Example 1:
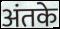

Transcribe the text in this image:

अंतके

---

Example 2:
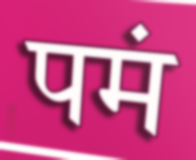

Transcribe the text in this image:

पमं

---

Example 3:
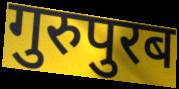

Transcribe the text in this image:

गुरुपुरब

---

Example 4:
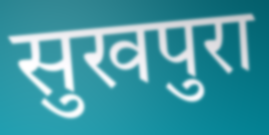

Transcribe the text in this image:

सुखपुरा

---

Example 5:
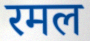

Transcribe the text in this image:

रमल